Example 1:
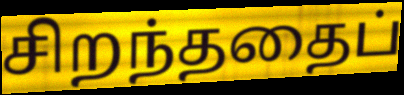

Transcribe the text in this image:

சிறந்ததைப்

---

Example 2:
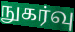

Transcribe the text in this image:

நுகர்வு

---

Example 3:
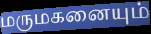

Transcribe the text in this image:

மருமகனையும்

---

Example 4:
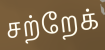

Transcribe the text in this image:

சற்றேக்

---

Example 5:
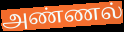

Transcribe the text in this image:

அண்ணல்